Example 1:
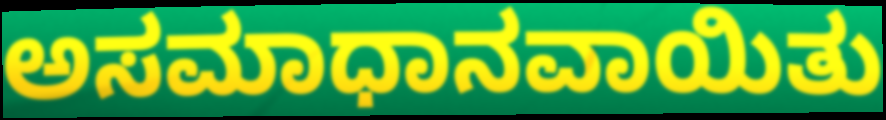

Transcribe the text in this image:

ಅಸಮಾಧಾನವಾಯಿತು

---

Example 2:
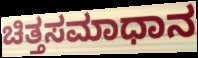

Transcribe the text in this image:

ಚಿತ್ತಸಮಾಧಾನ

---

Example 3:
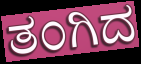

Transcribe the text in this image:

ತಂಗಿದ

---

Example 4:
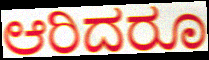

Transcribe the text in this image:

ಆರಿದರೂ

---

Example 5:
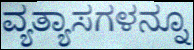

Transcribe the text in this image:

ವ್ಯತ್ಯಾಸಗಳನ್ನೂ